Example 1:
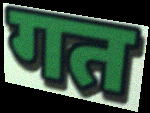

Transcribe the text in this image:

गत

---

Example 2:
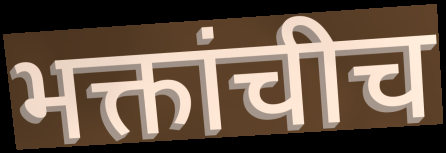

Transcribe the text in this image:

भक्तांचीच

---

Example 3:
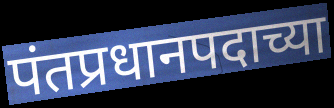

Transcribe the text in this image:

पंतप्रधानपदाच्या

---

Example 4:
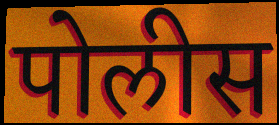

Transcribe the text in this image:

पोलीस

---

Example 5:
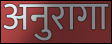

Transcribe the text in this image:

अनुरागा